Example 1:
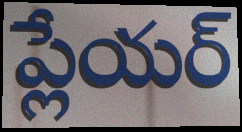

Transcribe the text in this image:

ప్లేయర్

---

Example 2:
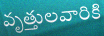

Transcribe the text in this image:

వృత్తులవారికి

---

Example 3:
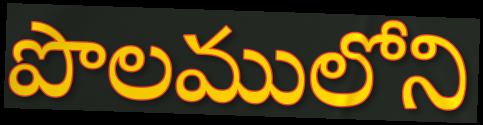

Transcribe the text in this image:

పొలములోని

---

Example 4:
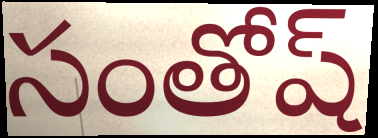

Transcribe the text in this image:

సంతోష్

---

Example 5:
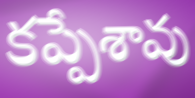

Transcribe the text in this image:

కప్పేశావు